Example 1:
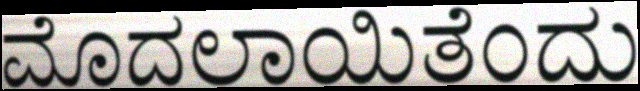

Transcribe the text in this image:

ಮೊದಲಾಯಿತೆಂದು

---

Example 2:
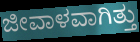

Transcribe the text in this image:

ಜೀವಾಳವಾಗಿತ್ತು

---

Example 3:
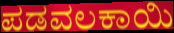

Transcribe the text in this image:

ಪಡವಲಕಾಯಿ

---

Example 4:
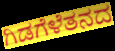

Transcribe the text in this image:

ಗಿಡಗೆಳೆತನದ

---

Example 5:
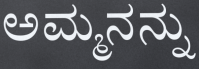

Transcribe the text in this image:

ಅಮ್ಮನನ್ನು